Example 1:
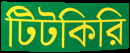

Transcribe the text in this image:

টিটকিরি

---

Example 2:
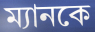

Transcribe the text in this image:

ম্যানকে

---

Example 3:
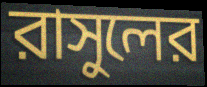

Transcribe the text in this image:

রাসুলের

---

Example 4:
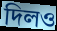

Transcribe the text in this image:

দিলও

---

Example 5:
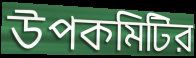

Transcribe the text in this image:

উপকমিটির